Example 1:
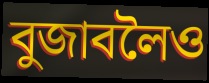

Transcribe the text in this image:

বুজাবলৈও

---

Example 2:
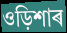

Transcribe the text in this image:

ওড়িশাৰ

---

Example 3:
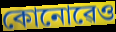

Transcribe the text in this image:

কোনোৱেও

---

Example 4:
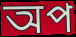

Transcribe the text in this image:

অপ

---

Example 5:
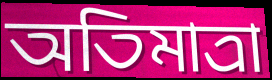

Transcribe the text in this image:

অতিমাত্ৰা